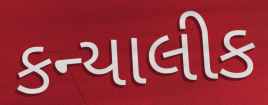
કન્યાલીક